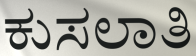
ಕುಸಲಾತಿ